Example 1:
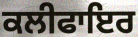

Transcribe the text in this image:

ਕਲੀਫਾਇਰ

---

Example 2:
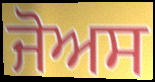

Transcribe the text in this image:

ਜੋਅਸ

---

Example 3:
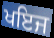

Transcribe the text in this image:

ਖਇਜ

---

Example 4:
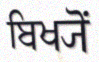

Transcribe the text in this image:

ਬਿਖ੍ਯੋਂ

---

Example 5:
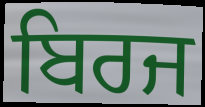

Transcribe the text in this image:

ਬਿਰਜ